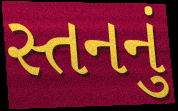
સ્તનનું